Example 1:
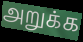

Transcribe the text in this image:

அறுக்க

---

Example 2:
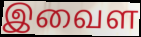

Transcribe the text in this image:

இவைள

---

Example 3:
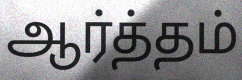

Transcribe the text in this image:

ஆர்த்தம்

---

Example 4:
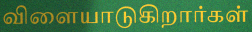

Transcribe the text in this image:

விளையாடுகிறார்கள்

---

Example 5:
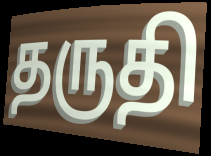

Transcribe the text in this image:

தருதி